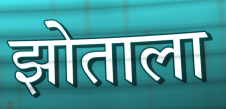
झोताला